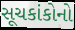
સૂચકાંકોનો